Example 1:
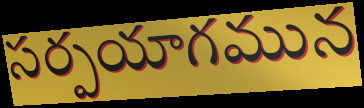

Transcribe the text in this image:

సర్పయాగమున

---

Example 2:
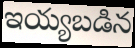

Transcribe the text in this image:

ఇయ్యబడిన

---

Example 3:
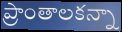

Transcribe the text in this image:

ప్రాంతాలకన్నా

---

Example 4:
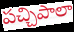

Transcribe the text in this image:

పచ్చిపాలా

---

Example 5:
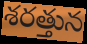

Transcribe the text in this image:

శరత్తున